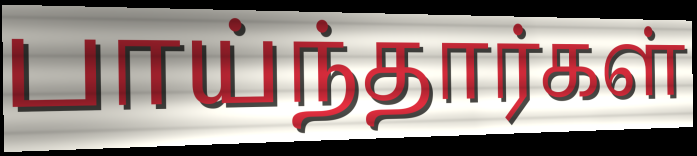
பாய்ந்தார்கள்